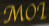
MOI